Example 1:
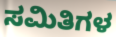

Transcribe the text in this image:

ಸಮಿತಿಗಳ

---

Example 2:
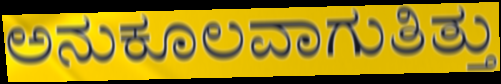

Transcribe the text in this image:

ಅನುಕೂಲವಾಗುತಿತ್ತು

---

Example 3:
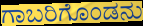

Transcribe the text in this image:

ಗಾಬರಿಗೊಂಡನು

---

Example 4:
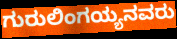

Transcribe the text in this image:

ಗುರುಲಿಂಗಯ್ಯನವರು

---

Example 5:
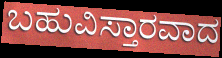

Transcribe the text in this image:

ಬಹುವಿಸ್ತಾರವಾದ